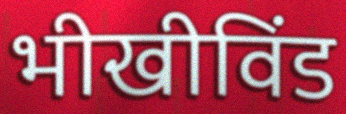
भीखीविंड